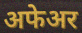
अफेअर